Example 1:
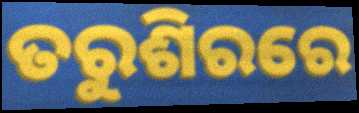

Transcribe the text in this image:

ତରୁଶିରରେ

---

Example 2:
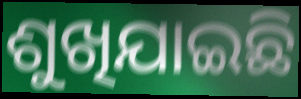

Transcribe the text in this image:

ଶୁଖିଯାଇଛି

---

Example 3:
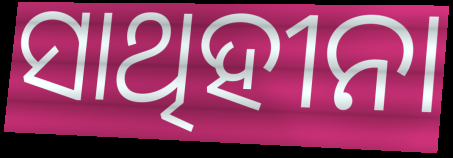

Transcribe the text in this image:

ସାଥିହୀନା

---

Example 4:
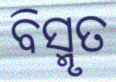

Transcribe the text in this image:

ବିସ୍ମୃତ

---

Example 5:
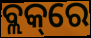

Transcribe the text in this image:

ବ୍ଲକ୍‌ରେ